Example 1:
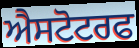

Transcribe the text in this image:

ਐਸਟੋਟਰਫ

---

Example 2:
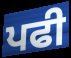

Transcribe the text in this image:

ਪਫੀ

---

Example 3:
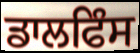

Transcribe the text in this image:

ਡਾਲਫਿੰਸ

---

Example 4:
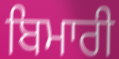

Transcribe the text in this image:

ਬਿਮਾਰੀ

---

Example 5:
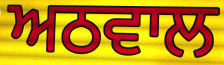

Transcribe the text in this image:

ਅਠਵਾਲ